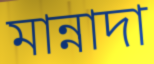
মান্নাদা